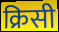
क्रिसी